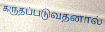
கருதப்படுவதனால்